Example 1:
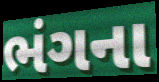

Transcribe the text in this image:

ભંગના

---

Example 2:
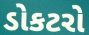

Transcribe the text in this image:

ડોકટરો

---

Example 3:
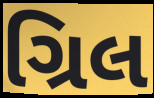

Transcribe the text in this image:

ગ્રિલ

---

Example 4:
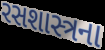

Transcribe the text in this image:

રસશાસ્ત્રના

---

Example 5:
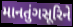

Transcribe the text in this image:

માનતુંગસૂરિને